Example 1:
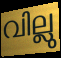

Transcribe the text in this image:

വില്ലു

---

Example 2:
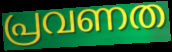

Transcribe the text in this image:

പ്രവണത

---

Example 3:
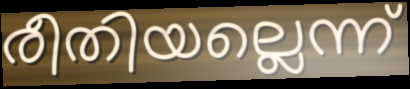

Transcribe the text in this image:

രീതിയല്ലെന്ന്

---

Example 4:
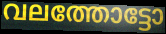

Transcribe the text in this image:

വലത്തോട്ടോ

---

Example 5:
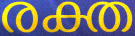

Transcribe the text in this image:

രക്ത